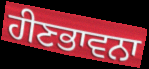
ਹੀਣਭਾਵਨਾ